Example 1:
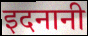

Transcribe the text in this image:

इदनानी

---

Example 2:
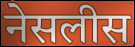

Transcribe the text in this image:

नेसलीस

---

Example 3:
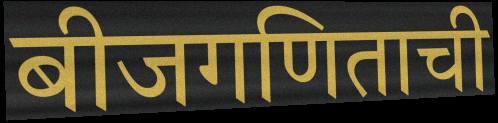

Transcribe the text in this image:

बीजगणिताची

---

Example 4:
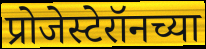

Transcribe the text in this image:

प्रोजेस्टेरॉनच्या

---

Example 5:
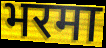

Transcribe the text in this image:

भरमा